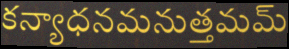
కన్యాధనమనుత్తమమ్